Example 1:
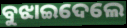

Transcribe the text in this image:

ବୁଝାଇଦେଲେ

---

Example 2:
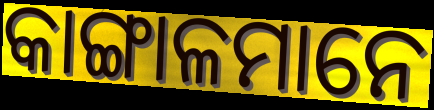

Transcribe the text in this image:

କାଙ୍ଗାଳମାନେ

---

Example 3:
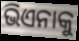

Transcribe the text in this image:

ଭିଏନାକୁ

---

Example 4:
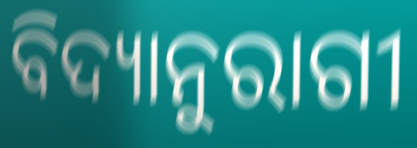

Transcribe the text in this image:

ବିଦ୍ୟାନୁରାଗୀ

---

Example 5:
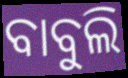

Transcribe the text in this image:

ବାବୁଲି